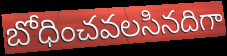
బోధించవలసినదిగా